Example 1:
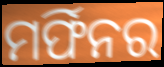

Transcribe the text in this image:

ମର୍ଫିନର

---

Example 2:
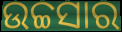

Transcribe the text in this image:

ଉଚ୍ଚସାର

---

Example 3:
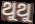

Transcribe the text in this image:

ଥୁଥୁ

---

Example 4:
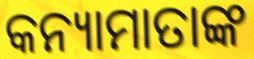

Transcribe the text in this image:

କନ୍ୟାମାତାଙ୍କ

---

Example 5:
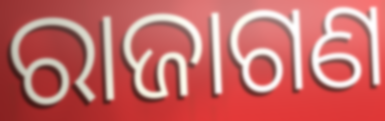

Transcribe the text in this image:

ରାଜାଗଣ